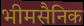
भीमसैनिक